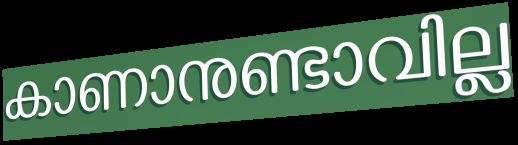
കാണാനുണ്ടാവില്ല